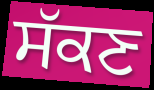
ਸੱਕਣ